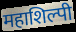
महाशिल्पी